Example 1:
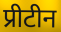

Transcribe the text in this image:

प्रीटीन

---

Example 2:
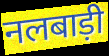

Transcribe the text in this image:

नलबाड़ी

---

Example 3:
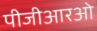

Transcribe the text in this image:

पीजीआरओ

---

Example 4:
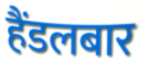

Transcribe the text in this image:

हैंडलबार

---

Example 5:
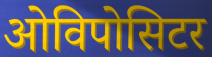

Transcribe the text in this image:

ओविपोसिटर